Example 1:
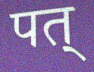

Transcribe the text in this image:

पत्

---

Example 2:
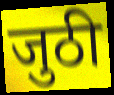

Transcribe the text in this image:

जुठी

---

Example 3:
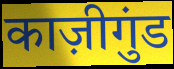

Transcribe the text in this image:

काज़ीगुंड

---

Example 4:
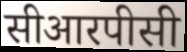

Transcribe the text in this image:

सीआरपीसी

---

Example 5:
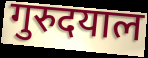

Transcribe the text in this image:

गुरुदयाल